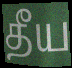
தீய